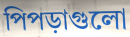
পিপড়াগুলো